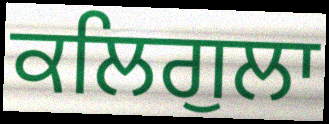
ਕਲਿਗੁਲਾ